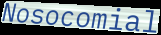
Nosocomial